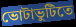
ভোটাভুটিতে